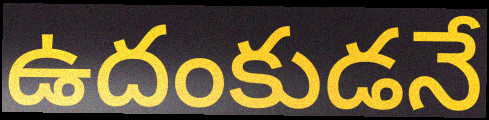
ఉదంకుడనే